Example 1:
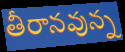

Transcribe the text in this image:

తీరానవున్న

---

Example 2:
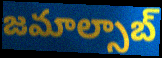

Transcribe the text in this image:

జమాల్సాబ్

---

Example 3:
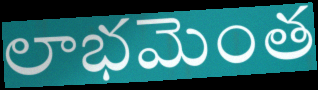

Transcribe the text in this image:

లాభమెంత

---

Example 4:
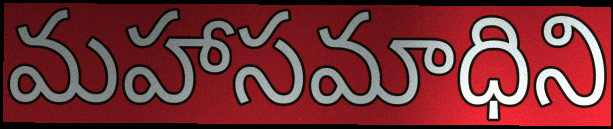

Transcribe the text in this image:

మహాసమాధిని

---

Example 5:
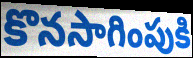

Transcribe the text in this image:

కొనసాగింపుకి